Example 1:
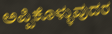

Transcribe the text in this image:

ಅಪ್ಪಿಕೊಳ್ಳುವುದರ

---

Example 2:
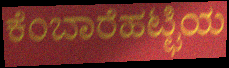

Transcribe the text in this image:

ಕೆಂಬಾರೆಹಟ್ಟಿಯ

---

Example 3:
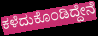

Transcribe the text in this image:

ಕಳೆದುಕೊಂಡಿದ್ದೇನೆ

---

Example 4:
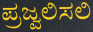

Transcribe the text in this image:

ಪ್ರಜ್ವಲಿಸಲಿ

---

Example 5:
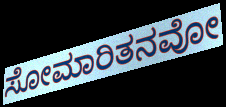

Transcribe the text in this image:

ಸೋಮಾರಿತನವೋ